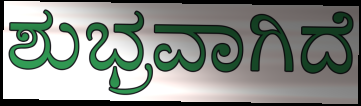
ಶುಭ್ರವಾಗಿದೆ